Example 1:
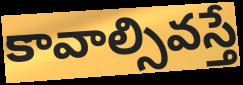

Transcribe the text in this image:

కావాల్సివస్తే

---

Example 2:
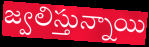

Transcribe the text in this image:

జ్వలిస్తున్నాయి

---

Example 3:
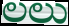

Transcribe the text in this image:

లలు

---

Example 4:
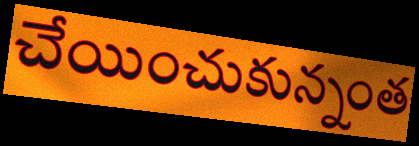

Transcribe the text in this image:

చేయించుకున్నంత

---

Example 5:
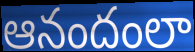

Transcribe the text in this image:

ఆనందంలా